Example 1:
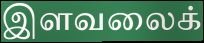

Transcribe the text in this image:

இளவலைக்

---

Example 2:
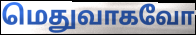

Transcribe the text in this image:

மெதுவாகவோ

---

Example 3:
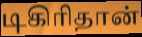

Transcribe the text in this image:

டிகிரிதான்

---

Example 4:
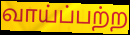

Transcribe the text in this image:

வாய்ப்பற்ற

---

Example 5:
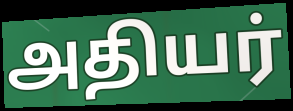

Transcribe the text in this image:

அதியர்